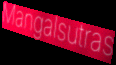
Mangalsutras